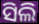
ସିଲି